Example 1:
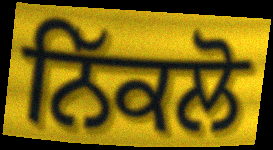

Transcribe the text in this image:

ਨਿੱਕਲੋ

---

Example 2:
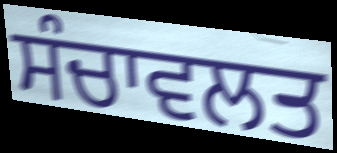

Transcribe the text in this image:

ਸੰਚਾਵਲਤ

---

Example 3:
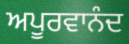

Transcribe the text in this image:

ਅਪੂਰਵਾਨੰਦ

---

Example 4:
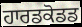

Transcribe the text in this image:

ਹਾਰਡਕੋਡਡ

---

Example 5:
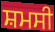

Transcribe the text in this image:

ਸ਼ਮਸੀ